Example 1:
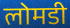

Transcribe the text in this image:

लोमडी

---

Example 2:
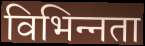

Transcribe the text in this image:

विभिन्‍नता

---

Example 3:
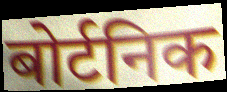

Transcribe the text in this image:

बोर्टनिक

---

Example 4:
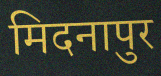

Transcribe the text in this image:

मिदनापुर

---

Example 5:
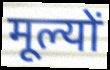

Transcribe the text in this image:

मूल्यों